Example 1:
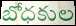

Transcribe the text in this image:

బోధకుల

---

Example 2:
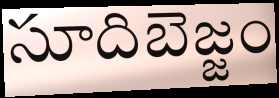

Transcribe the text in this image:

సూదిబెజ్జం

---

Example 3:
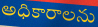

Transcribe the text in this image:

అధికారాలను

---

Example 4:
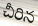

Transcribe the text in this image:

చీరిన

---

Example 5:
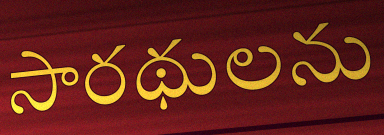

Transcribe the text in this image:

సారథులను